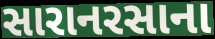
સારાનરસાના